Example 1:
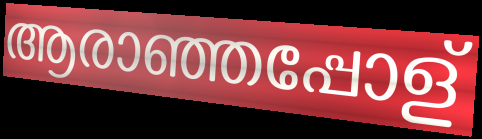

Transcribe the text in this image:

ആരാഞ്ഞപ്പോള്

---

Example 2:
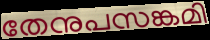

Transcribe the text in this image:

തേനുപസങ്കമി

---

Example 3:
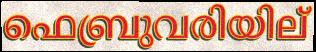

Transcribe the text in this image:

ഫെബ്രുവരിയില്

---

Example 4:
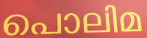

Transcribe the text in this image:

പൊലിമ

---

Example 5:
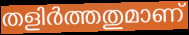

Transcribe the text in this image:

തളിർത്തതുമാണ്